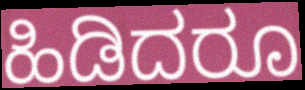
ಹಿಡಿದರೂ